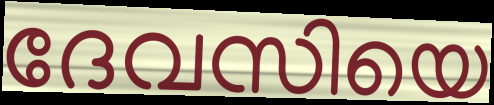
ദേവസിയെ